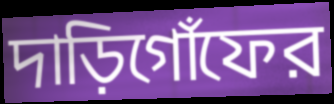
দাড়িগোঁফের